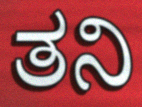
ತನಿ